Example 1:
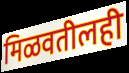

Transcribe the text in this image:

मिळवतीलही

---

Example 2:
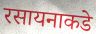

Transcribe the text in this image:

रसायनाकडे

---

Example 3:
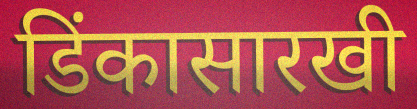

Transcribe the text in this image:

डिंकासारखी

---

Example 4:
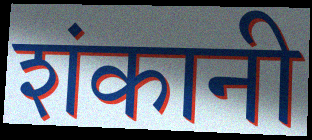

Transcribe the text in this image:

शंकानी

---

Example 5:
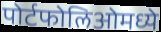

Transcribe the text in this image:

पोर्टफोलिओमध्ये